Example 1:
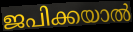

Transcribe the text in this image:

ജപിക്കയാൽ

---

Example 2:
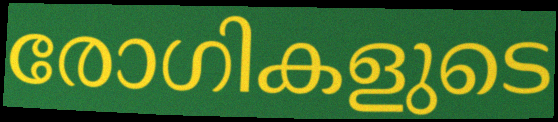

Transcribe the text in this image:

രോഗികളുടെ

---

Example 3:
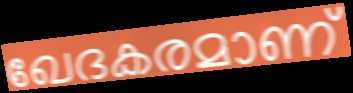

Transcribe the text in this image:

ഖേദകരമാണ്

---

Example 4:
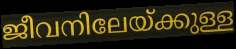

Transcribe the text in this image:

ജീവനിലേയ്ക്കുള്ള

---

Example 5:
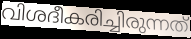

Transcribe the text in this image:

വിശദീകരിച്ചിരുന്നത്